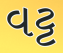
વટ્ટ